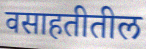
वसाहतीतील